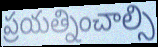
ప్రయత్నించాల్సి